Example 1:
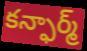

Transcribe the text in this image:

కన్ఫార్మ్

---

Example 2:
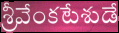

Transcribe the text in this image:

శ్రీవేంకటేశుడే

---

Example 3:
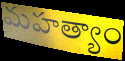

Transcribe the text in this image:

మహత్యాం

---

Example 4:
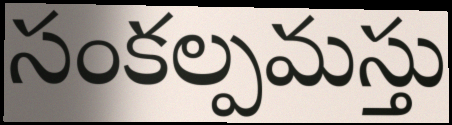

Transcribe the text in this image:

సంకల్పమస్తు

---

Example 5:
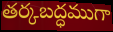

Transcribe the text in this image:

తర్కబద్ధముగా